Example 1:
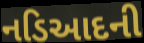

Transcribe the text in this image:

નડિઆદની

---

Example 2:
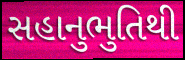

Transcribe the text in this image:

સહાનુભુતિથી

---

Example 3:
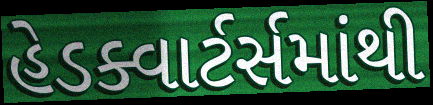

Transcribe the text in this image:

હેડક્વાર્ટર્સમાંથી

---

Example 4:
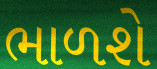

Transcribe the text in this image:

ભાળશે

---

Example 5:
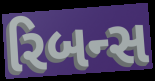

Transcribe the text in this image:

રિબન્સ